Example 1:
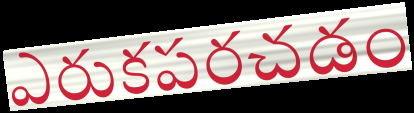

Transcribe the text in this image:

ఎరుకపరచడం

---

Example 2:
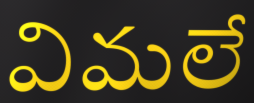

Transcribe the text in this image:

విమలే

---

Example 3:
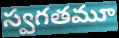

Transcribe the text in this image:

స్వగతమూ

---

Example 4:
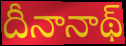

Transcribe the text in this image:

దీనానాథ్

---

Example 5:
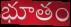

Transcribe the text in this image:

భూతం